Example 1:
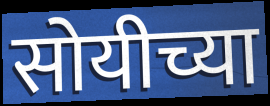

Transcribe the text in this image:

सोयीच्या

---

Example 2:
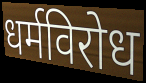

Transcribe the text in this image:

धर्मविरोध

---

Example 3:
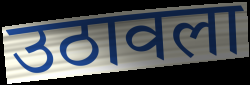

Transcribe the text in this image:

उठावला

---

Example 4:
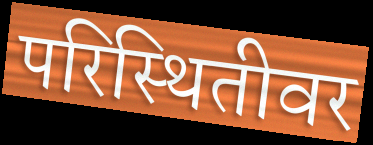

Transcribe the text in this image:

परिस्थितीवर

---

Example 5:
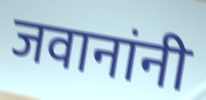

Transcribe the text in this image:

जवानांनी